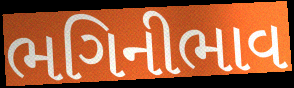
ભગિનીભાવ